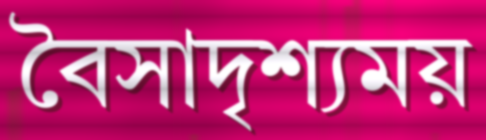
বৈসাদৃশ্যময়